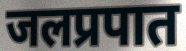
जलप्रपात